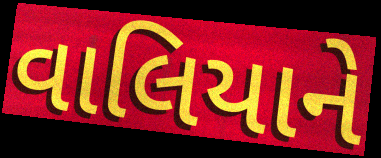
વાલિયાને